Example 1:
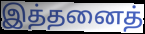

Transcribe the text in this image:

இத்தனைத்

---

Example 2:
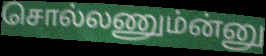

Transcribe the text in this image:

சொல்லணும்ன்னு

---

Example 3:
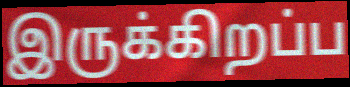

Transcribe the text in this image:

இருக்கிறப்ப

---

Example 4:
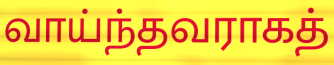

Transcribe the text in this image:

வாய்ந்தவராகத்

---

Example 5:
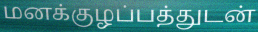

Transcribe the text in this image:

மனக்குழப்பத்துடன்